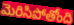
మెరిసిపోతోంది